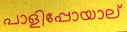
പാളിപ്പോയാല്